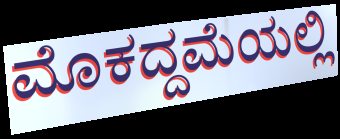
ಮೊಕದ್ದಮೆಯಲ್ಲಿ